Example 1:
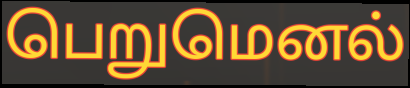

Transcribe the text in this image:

பெறுமெனல்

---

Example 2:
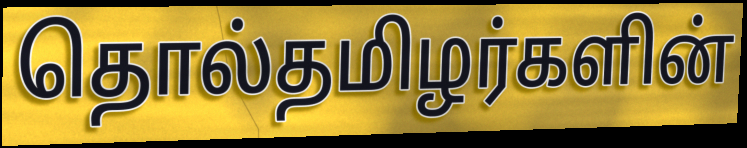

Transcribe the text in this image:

தொல்தமிழர்களின்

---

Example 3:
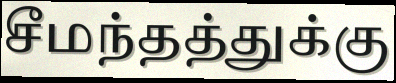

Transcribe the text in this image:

சீமந்தத்துக்கு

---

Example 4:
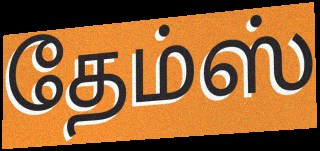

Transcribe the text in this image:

தேம்ஸ்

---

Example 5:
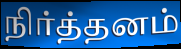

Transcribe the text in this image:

நிர்த்தனம்